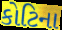
કોટિના